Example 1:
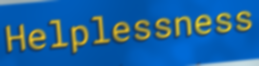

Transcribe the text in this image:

Helplessness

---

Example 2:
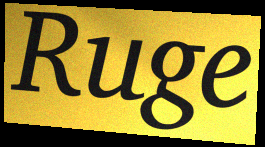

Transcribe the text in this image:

Ruge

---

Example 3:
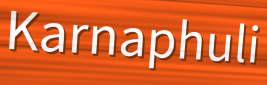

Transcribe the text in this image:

Karnaphuli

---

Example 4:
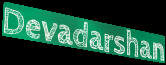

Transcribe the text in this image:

Devadarshan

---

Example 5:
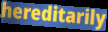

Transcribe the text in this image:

hereditarily